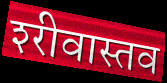
श्रीवास्तव